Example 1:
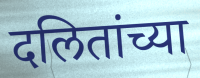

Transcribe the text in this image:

दलितांच्या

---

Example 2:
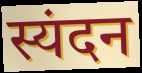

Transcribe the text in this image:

स्यंदन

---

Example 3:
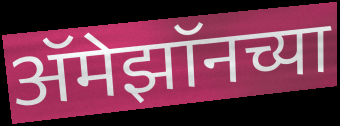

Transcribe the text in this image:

ॲमेझॉनच्या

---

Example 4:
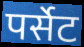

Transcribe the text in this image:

पर्सेट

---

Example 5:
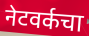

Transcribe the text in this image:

नेटवर्कचा